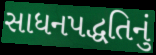
સાધનપદ્ધતિનું